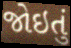
જોઇતું